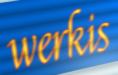
werkis